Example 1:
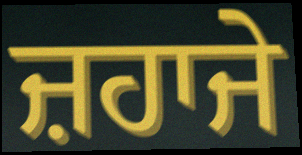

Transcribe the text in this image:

ਜ਼ਹਾਜੇ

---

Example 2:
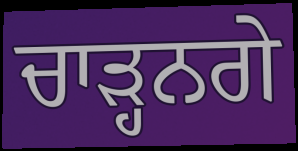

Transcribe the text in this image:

ਚਾੜ੍ਹਨਗੇ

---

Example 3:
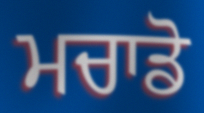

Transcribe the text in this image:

ਮਚਾਡੋ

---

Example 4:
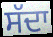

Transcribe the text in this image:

ਸੱਦਾ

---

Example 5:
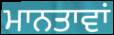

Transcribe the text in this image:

ਮਾਨਤਾਵਾਂ